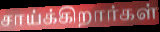
சாய்க்கிறார்கள்